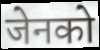
जेनको